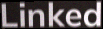
Linked